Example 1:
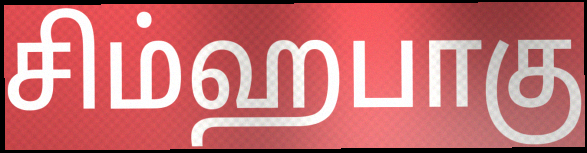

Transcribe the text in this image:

சிம்ஹபாகு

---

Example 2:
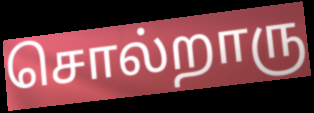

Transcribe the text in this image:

சொல்றாரு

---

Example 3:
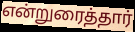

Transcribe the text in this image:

என்றுரைத்தார்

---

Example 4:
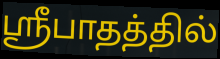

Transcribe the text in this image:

ஸ்ரீபாதத்தில்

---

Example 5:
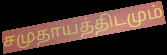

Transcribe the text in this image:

சமுதாயத்திடமும்